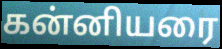
கன்னியரை